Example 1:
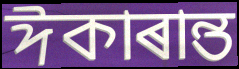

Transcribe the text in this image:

ঈকাৰান্ত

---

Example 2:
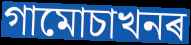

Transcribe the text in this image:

গামোচাখনৰ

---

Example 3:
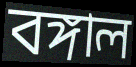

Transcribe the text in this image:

বঙ্গাল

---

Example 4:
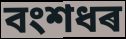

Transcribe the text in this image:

বংশধৰ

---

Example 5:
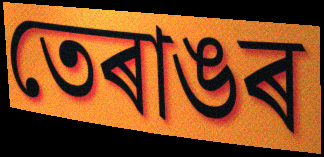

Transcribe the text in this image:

তেৰাঙৰ